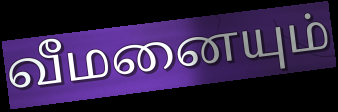
வீமனையும்